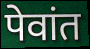
पेवांत